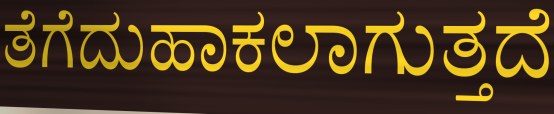
ತೆಗೆದುಹಾಕಲಾಗುತ್ತದೆ